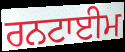
ਰਨਟਾਈਮ